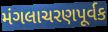
મંગલાચરણપૂર્વક